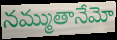
నమ్ముతానేమో